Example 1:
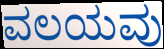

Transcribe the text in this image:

ವಲಯವು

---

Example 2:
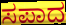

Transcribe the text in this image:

ಸಪಾದ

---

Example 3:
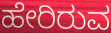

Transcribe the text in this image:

ಹೇರಿರುವ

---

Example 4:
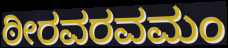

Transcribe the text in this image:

ಠೀರವರವಮಂ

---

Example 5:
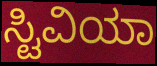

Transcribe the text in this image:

ಸ್ಟಿವಿಯಾ